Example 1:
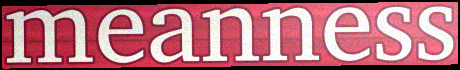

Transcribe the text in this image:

meanness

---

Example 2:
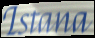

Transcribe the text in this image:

Istana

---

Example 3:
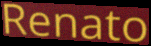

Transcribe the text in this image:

Renato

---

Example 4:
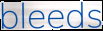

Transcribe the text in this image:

bleeds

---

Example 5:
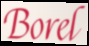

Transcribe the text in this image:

Borel